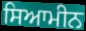
ਸਿਆਮੀਨ